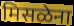
मिसळेना